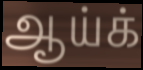
ஆய்க்